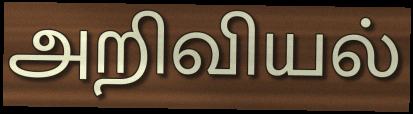
அறிவியல்